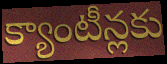
క్యాంటీన్లకు